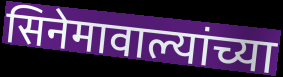
सिनेमावाल्यांच्या